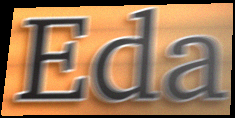
Eda